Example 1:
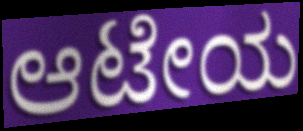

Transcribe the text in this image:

ಆಟೇಯ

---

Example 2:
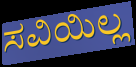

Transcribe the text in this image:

ಸವಿಯಿಲ್ಲ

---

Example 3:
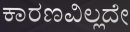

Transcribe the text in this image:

ಕಾರಣವಿಲ್ಲದೇ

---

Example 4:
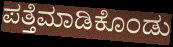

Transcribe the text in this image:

ಪತ್ತೆಮಾಡಿಕೊಂಡು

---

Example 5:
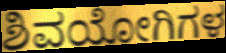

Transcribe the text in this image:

ಶಿವಯೋಗಿಗಳ